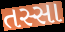
તસ્સા